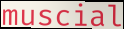
muscial